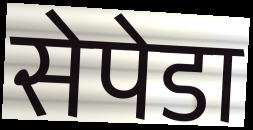
सेपेडा